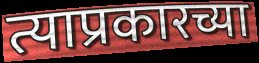
त्याप्रकारच्या